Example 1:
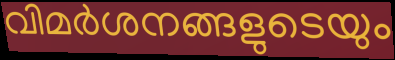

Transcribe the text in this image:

വിമർശനങ്ങളുടെയും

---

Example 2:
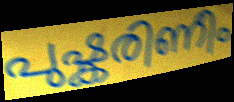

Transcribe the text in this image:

പുഷ്കരിണീം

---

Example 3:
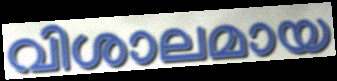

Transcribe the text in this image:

വിശാലമായ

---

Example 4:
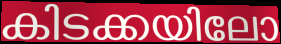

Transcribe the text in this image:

കിടക്കയിലോ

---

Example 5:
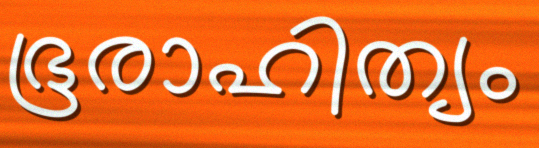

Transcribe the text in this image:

ഭൂരാഹിത്യം